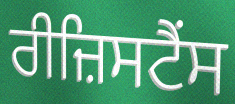
ਰੀਜ਼ਿਸਟੈਂਸ